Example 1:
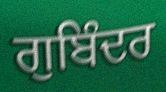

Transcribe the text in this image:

ਗੁਬਿੰਦਰ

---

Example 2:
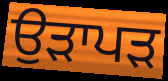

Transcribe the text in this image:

ਉੜਾਪੜ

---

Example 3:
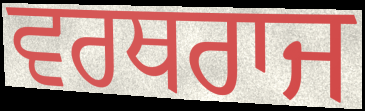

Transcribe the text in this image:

ਵਰਥਰਾਜ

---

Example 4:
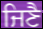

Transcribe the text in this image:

ਜਿਣੈ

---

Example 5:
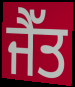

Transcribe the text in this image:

ਜੈੱਤ